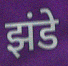
झंडे